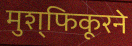
मुश्फिकूरने